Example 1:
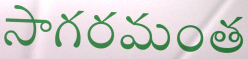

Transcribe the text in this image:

సాగరమంత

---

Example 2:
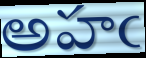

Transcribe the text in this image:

అహఁ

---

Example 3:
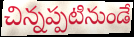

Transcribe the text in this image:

చిన్నప్పటినుండే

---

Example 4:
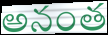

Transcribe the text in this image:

అనంత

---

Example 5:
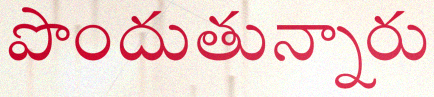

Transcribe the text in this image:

పొందుతున్నారు